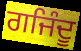
ਗਜਿੰਦੂ